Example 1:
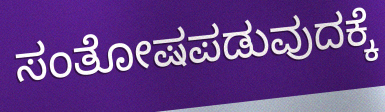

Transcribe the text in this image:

ಸಂತೋಷಪಡುವುದಕ್ಕೆ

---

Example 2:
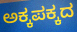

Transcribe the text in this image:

ಅಕ್ಕಪಕ್ಕದ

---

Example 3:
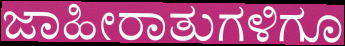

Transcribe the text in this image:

ಜಾಹೀರಾತುಗಳಿಗೂ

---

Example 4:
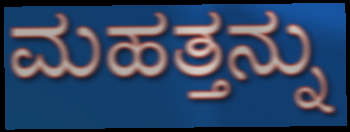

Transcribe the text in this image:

ಮಹತ್ತನ್ನು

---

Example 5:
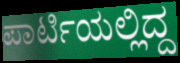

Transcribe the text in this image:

ಪಾರ್ಟಿಯಲ್ಲಿದ್ದ